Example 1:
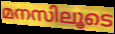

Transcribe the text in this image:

മനസിലൂടെ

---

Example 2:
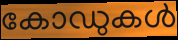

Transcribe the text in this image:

കോഡുകൾ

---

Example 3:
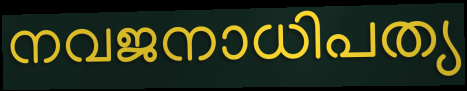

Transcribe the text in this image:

നവജനാധിപത്യ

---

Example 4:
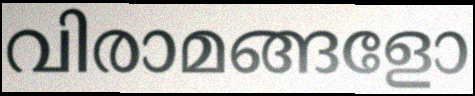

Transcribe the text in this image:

വിരാമങ്ങളോ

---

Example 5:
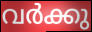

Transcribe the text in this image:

വർക്കു